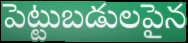
పెట్టుబడులపైన